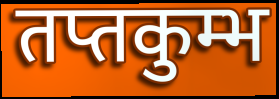
तप्तकुम्भ